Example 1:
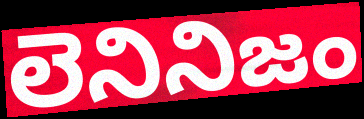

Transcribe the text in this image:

లెనినిజం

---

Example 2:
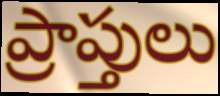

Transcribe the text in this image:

ప్రాప్తులు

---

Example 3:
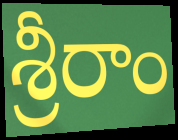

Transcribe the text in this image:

శ్రీరాం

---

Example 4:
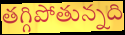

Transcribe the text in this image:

తగ్గిపోతున్నది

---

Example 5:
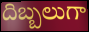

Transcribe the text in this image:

దిబ్బలుగా